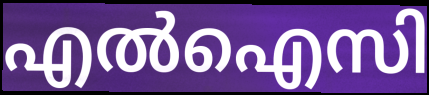
എൽഐസി